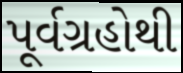
પૂર્વગ્રહોથી